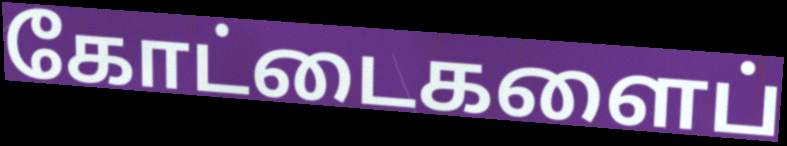
கோட்டைகளைப்